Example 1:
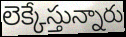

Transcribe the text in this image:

లెక్కేస్తున్నారు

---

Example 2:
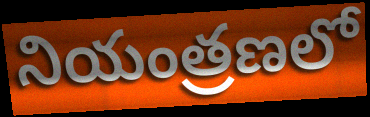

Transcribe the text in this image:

నియంత్రణలో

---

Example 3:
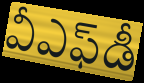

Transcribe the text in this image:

వీఎఫ్‌డీ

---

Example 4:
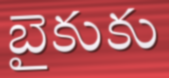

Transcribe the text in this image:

బైకుకు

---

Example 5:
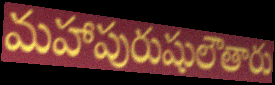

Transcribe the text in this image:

మహాపురుషులౌతారు